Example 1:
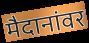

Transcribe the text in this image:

मैदानांवर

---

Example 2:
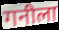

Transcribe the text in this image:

गनीला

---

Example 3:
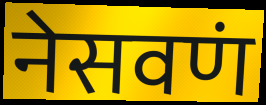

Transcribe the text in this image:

नेसवणं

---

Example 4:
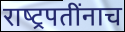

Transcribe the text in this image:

राष्ट्रपतींनाच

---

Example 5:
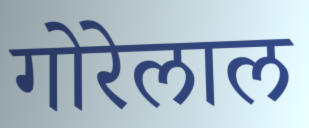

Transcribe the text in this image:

गोरेलाल